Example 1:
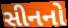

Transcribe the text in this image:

સીનનો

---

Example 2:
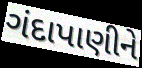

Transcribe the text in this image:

ગંદાપાણીને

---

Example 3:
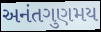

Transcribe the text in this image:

અનંતગુણમય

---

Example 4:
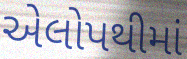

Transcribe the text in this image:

એલોપથીમાં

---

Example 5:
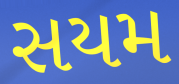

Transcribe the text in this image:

સયમ